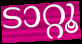
ടാറ്റൂ